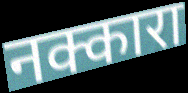
नक्कारा